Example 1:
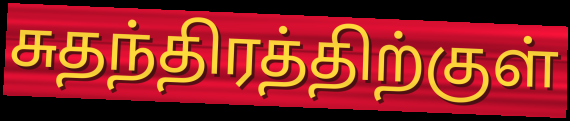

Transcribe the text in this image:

சுதந்திரத்திற்குள்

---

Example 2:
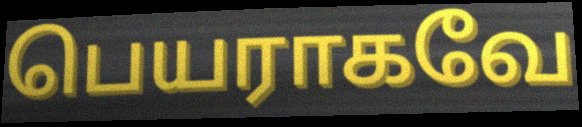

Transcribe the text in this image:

பெயராகவே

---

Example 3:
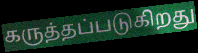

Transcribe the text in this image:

கருத்தப்படுகிறது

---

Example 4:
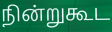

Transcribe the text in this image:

நின்றுகூட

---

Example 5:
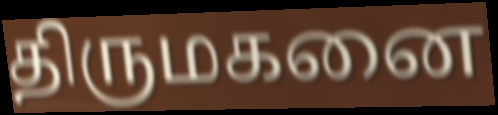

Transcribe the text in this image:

திருமகனை